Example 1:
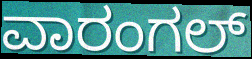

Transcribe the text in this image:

ವಾರಂಗಲ್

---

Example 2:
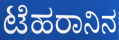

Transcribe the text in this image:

ಟೆಹರಾನಿನ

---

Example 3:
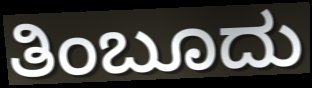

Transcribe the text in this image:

ತಿಂಬೂದು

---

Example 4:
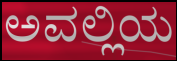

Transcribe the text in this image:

ಅವಲ್ಲಿಯ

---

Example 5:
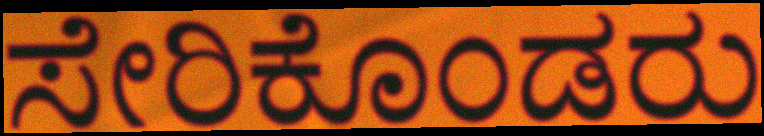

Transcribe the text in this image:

ಸೇರಿಕೊಂಡರು